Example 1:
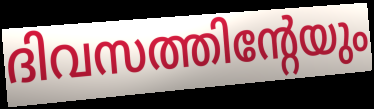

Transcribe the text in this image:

ദിവസത്തിന്റേയും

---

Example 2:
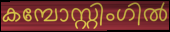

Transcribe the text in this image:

കമ്പോസ്റ്റിംഗിൽ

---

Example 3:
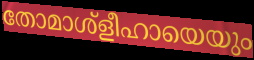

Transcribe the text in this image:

തോമാശ്ളീഹായെയും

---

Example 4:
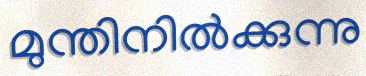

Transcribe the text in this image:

മുന്തിനിൽക്കുന്നു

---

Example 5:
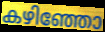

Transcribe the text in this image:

കഴിഞ്ഞോ